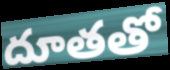
దూతతో